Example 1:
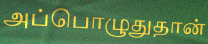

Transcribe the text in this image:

அப்பொழுதுதான்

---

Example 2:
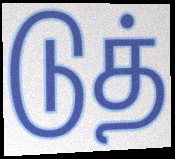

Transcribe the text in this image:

டுத்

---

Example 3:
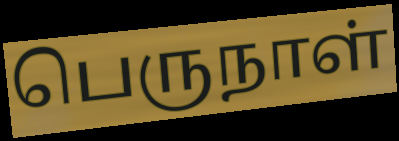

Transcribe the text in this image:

பெருநாள்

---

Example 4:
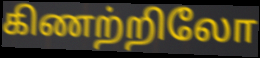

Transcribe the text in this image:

கிணற்றிலோ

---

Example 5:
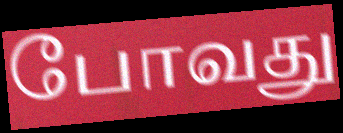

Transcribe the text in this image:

போவது